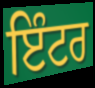
ਇੰਟਰ